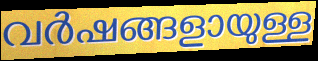
വർഷങ്ങളായുള്ള